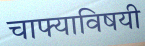
चाफ्याविषयी